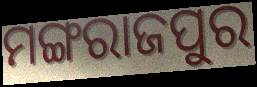
ମଙ୍ଗରାଜପୁର